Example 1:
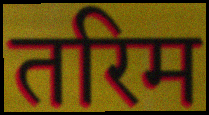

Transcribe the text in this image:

तरिम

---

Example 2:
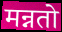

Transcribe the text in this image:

मन्नतो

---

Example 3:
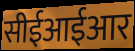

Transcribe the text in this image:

सीईआईआर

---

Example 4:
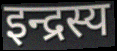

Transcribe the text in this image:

इन्द्रस्य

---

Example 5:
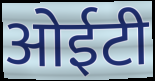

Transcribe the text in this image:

ओईटी